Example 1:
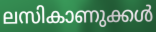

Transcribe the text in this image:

ലസികാണുക്കൾ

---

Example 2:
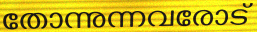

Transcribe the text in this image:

തോന്നുന്നവരോട്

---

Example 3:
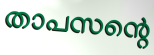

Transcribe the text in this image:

താപസന്റെ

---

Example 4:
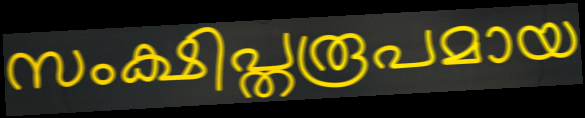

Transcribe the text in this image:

സംക്ഷിപ്തരൂപമായ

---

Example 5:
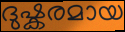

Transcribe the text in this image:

ദുഷ്കരമായ